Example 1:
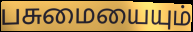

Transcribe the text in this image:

பசுமையையும்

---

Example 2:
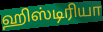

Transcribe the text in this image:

ஹிஸ்டிரியா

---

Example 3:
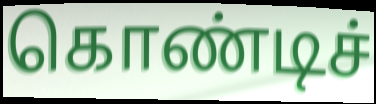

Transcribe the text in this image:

கொண்டிச்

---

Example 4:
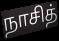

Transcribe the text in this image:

நாசித்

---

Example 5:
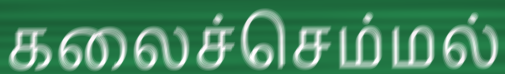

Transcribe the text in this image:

கலைச்செம்மல்